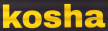
kosha